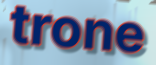
trone